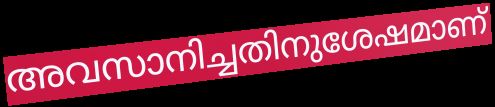
അവസാനിച്ചതിനുശേഷമാണ്